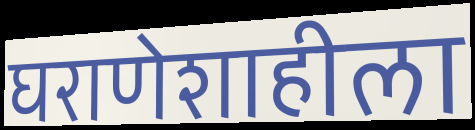
घराणेशाहीला